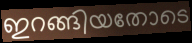
ഇറങ്ങിയതോടെ